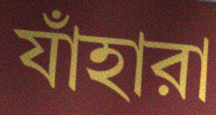
যাঁহারা